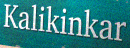
Kalikinkar